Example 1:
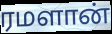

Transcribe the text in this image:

ரமளான்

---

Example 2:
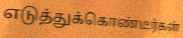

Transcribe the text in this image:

எடுத்துக்கொண்டீர்கள்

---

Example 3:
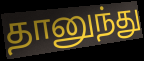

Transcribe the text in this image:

தானுந்து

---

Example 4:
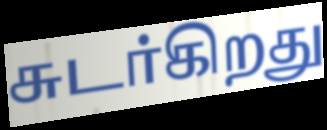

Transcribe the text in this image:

சுடர்கிறது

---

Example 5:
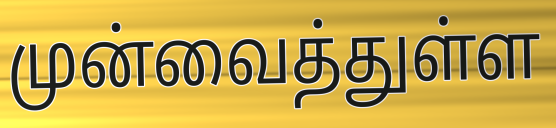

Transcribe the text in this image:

முன்வைத்துள்ள